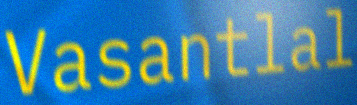
Vasantlal